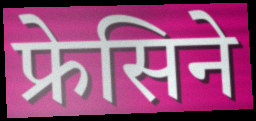
फ्रेसिने